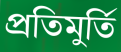
প্রতিমুর্তি